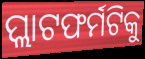
ପ୍ଲାଟଫର୍ମଟିକୁ